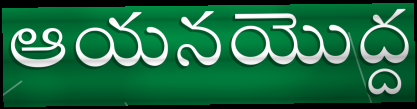
ఆయనయొద్ద